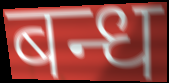
बन्ध